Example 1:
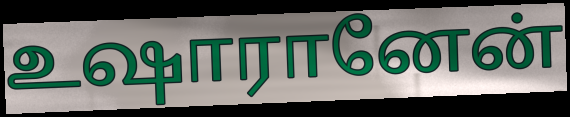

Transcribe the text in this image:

உஷாரானேன்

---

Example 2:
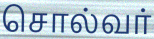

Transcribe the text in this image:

சொல்வர்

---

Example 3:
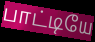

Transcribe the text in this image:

பாட்டியே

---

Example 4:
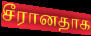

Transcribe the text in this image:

சீரானதாக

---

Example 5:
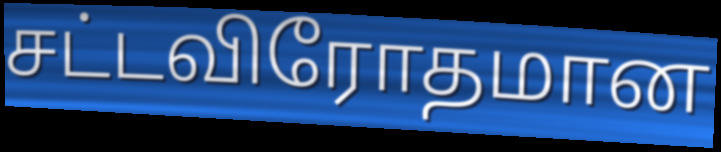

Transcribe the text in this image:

சட்டவிரோதமான